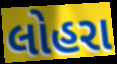
લોહરા